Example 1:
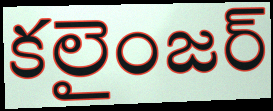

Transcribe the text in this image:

కలైంజర్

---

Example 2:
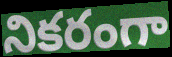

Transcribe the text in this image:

నికరంగా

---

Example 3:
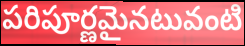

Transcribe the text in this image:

పరిపూర్ణమైనటువంటి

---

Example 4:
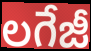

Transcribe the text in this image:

లగేజీ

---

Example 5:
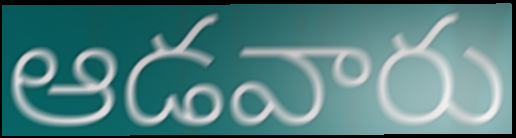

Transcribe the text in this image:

ఆడవారు